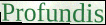
Profundis